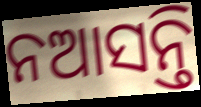
ନଆସନ୍ତି